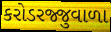
કરોડરજ્જુવાળા